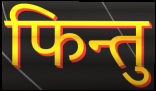
फिन्तु